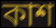
কাশ